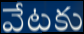
వేటకు